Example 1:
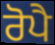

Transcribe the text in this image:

ਰੋਪੈ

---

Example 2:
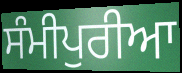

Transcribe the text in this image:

ਸੰਮੀਪੁਰੀਆ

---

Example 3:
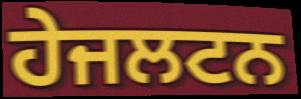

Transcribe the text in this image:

ਹੇਜਲਟਨ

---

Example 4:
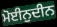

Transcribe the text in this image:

ਮੋਈਨੁਦੀਨ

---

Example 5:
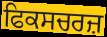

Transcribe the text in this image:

ਫਿਕਸਚਰਜ਼